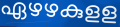
ഏഴഴകുളള